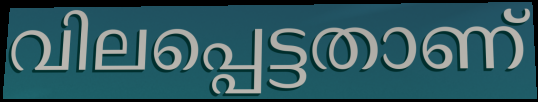
വിലപ്പെട്ടതാണ്